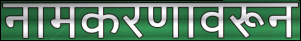
नामकरणावरून